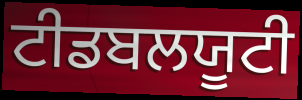
ਟੀਡਬਲਯੂਟੀ